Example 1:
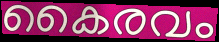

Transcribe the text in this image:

കൈരവം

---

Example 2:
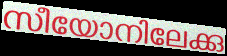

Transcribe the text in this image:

സീയോനിലേക്കു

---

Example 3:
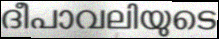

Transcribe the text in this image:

ദീപാവലിയുടെ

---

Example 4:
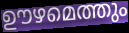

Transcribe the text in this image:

ഊഴമെത്തും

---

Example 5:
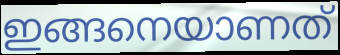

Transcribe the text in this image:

ഇങ്ങനെയാണത്